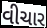
વીચાર